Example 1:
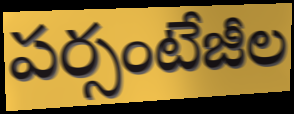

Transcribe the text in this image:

పర్సంటేజీల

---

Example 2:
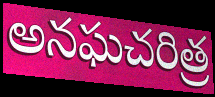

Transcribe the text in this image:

అనఘచరిత్ర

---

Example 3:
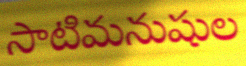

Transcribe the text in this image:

సాటిమనుషుల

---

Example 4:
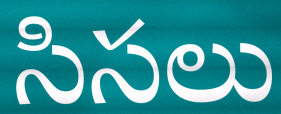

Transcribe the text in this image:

సిసలు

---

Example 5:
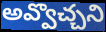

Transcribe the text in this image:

అవ్వొచ్చని